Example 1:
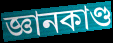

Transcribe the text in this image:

জ্ঞানকাণ্ড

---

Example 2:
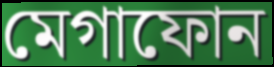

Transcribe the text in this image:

মেগাফোন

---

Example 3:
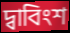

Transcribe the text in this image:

দ্বাবিংশ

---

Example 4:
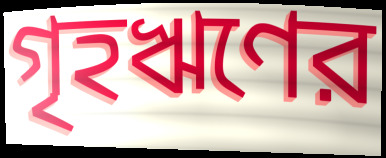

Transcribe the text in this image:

গৃহঋণের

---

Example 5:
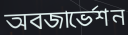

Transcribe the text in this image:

অবজার্ভেশন